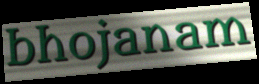
bhojanam